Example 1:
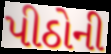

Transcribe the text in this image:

પીઠોની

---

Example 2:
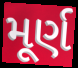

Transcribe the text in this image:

મૂર્ણ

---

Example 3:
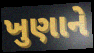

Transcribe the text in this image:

ખુણાને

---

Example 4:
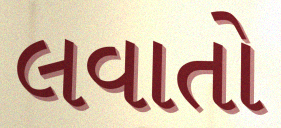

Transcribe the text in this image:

લવાતો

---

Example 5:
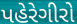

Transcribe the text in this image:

પહેરેગીરો